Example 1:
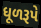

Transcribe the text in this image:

ધૂળરૂપે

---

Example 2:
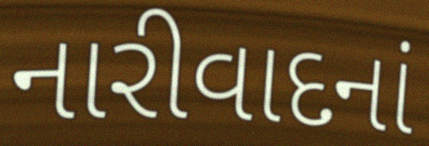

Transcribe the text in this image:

નારીવાદનાં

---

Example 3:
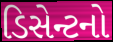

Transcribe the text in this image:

ડિસેન્ટનો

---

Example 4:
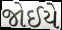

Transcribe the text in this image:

જોઈયે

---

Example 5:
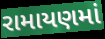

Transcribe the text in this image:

રામાયણમાં